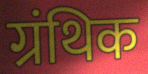
ग्रंथिक